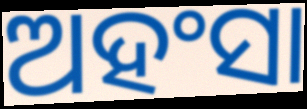
ଅହଂସା